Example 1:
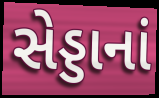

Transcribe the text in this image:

સેડ્ડાનાં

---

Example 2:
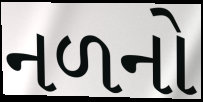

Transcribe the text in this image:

નળનો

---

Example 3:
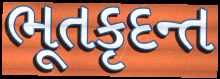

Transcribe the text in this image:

ભૂતકૃદન્ત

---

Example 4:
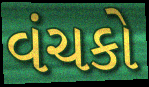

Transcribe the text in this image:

વંચકો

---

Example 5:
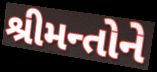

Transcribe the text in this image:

શ્રીમન્તોને